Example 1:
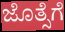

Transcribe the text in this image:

ಜೊತ್ಸೆಗೆ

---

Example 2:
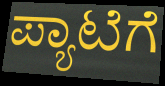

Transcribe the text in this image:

ಪ್ಯಾಟೆಗೆ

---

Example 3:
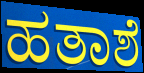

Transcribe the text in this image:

ಹತಾಶೆ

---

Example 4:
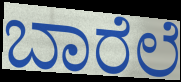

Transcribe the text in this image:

ಬಾರೆಲೆ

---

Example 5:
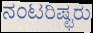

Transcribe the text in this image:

ನಂಟರಿಷ್ಟರು